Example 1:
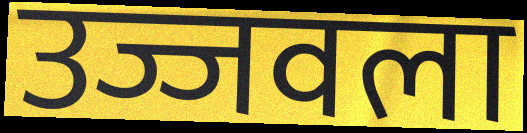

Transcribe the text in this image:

उज्जवला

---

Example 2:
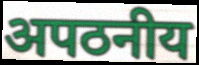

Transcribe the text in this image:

अपठनीय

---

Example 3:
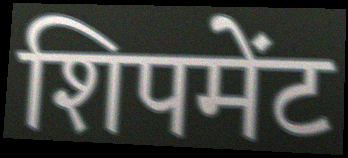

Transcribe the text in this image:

शिपमेंट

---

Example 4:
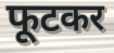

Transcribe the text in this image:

फूटकर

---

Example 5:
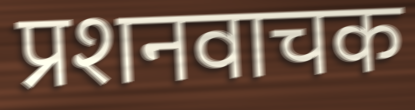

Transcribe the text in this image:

प्रशनवाचक